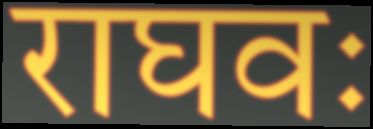
राघवः